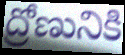
ద్రోణునికి